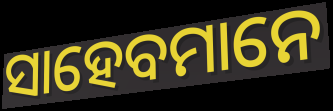
ସାହେବମାନେ